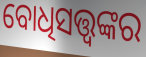
ବୋଧିସତ୍ତ୍ଵଙ୍କର